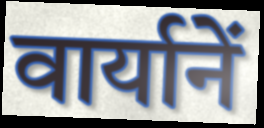
वार्यानें